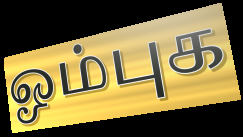
ஓம்புக